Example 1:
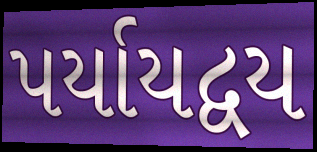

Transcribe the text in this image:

પર્યાયદ્વય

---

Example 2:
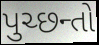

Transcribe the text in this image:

પુચ્છન્તો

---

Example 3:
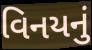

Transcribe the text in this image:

વિનયનું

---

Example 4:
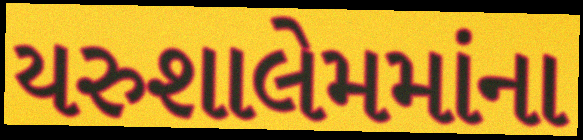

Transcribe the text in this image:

યરુશાલેમમાંના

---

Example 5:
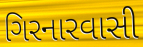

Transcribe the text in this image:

ગિરનારવાસી